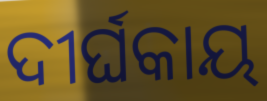
ଦୀର୍ଘକାୟ